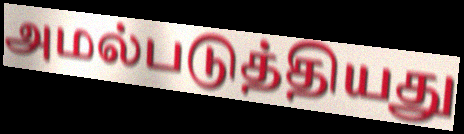
அமல்படுத்தியது